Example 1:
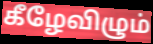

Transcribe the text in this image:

கீழேவிழும்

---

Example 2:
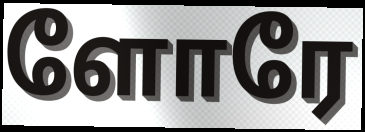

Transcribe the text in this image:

ளோரே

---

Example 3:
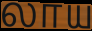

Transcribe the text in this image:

லாய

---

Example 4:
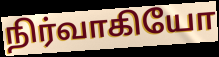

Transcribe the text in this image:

நிர்வாகியோ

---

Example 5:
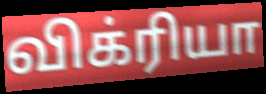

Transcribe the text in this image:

விக்ரியா